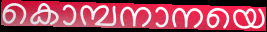
കൊമ്പനാനയെ